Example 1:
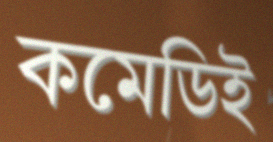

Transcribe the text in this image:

কমেডিই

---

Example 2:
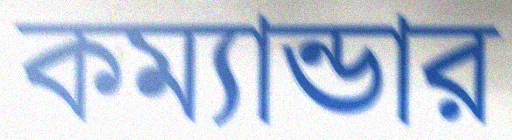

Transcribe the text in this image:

কম্যান্ডার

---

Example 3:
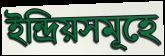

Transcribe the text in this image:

ইন্দ্রিয়সমূহে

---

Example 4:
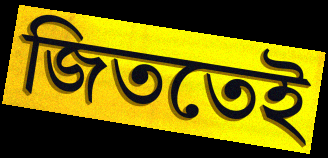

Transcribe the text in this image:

জিততেই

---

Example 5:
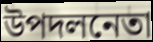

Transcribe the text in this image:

উপদলনেতা